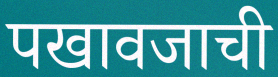
पखावजाची